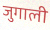
जुगाली